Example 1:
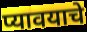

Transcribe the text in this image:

प्यावयाचे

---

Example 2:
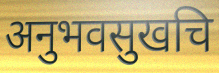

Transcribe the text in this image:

अनुभवसुखचि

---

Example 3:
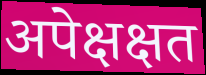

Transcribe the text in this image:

अपेक्षक्षत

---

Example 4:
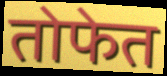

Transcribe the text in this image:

तोफेत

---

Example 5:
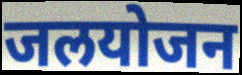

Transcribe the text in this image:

जलयोजन